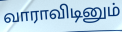
வாராவிடினும்